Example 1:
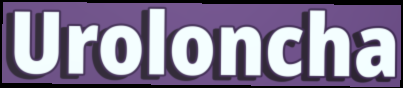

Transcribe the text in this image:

Uroloncha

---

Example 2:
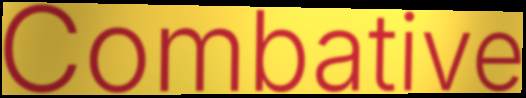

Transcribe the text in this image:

Combative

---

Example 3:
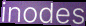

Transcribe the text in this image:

inodes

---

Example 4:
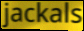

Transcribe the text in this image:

jackals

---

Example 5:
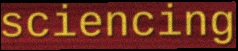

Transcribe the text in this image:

sciencing